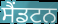
ਸੈਂਡਟਨ